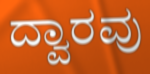
ದ್ವಾರವು